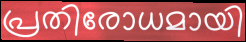
പ്രതിരോധമായി